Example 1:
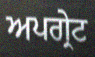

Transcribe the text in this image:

ਅਪਗ੍ਰੇਟ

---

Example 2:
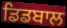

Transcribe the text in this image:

ਡਿਡਬਾਲ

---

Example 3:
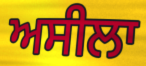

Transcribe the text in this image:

ਅਸੀਲਾ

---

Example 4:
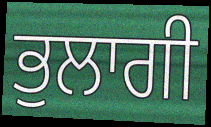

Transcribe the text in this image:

ਭੁਲਾਗੀ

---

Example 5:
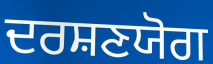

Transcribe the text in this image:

ਦਰਸ਼ਣਯੋਗ